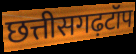
छत्तीसगढ़टॉप